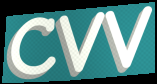
CVV